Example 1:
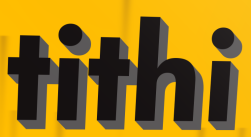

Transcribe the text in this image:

tithi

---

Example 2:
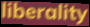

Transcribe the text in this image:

liberality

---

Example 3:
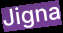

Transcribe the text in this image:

Jigna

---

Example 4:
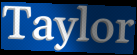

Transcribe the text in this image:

Taylor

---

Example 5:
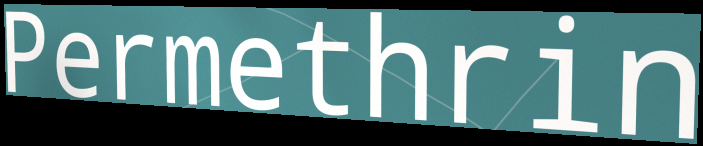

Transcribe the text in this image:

Permethrin